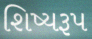
શિષ્યરૂપ